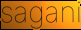
sagani